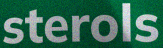
sterols